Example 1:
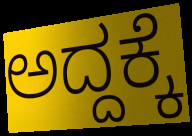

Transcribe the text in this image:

ಅದ್ದಕ್ಕೆ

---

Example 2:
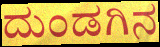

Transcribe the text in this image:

ದುಂಡಗಿನ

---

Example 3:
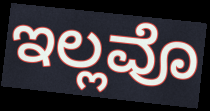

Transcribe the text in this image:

ಇಲ್ಲವೊ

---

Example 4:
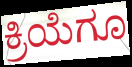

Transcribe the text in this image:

ಕ್ರಿಯೆಗೂ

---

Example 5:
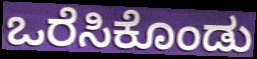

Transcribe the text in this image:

ಒರೆಸಿಕೊಂಡು